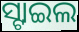
ସ୍ଟାଇଲ